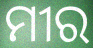
ମୀର